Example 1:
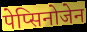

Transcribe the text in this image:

पेप्सिनोजेन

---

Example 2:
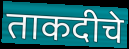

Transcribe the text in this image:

ताकदीचे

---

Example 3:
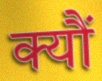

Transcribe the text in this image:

क्यौं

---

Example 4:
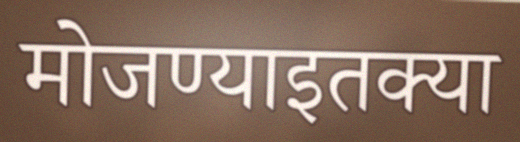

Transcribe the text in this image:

मोजण्याइतक्या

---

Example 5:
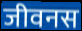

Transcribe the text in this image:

जीवनस